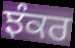
ਝੰਕਰ